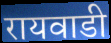
रायवाडी